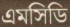
এমসিডি